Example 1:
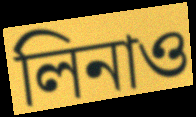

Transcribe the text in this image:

লিনাও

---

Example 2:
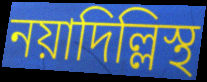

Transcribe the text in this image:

নয়াদিল্লিস্থ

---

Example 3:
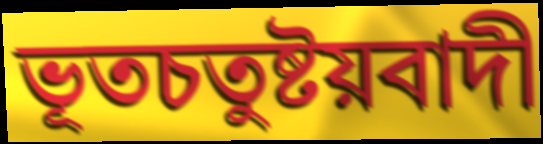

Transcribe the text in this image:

ভূতচতুষ্টয়বাদী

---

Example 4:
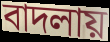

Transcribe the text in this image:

বাদলায়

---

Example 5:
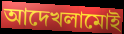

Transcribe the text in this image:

আদেখলামোই